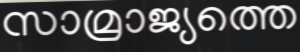
സാമ്രാജ്യത്തെ